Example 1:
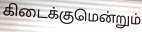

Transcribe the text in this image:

கிடைக்குமென்றும்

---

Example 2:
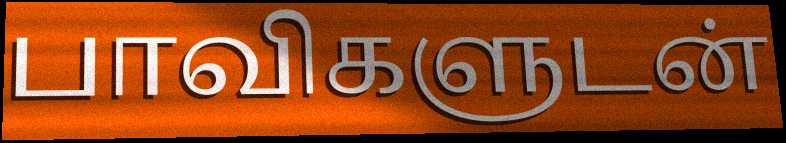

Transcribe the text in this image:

பாவிகளுடன்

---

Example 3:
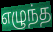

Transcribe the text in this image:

எழுந்த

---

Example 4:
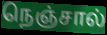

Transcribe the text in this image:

நெஞ்சால்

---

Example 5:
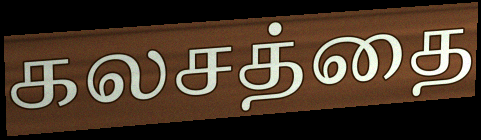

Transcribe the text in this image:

கலசத்தை